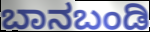
ಬಾನಬಂಡಿ